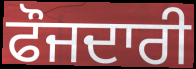
ਫੌਜਦਾਰੀ